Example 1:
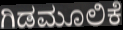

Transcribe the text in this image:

ಗಿಡಮೂಲಿಕೆ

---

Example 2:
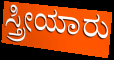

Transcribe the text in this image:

ಸ್ತ್ರೀಯಾರು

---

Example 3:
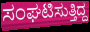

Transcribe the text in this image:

ಸಂಘಟಿಸುತ್ತಿದ್ದ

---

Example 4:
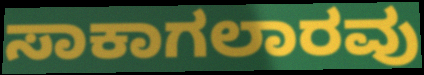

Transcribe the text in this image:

ಸಾಕಾಗಲಾರವು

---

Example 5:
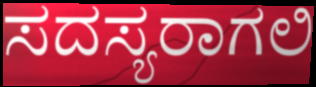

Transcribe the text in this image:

ಸದಸ್ಯರಾಗಲಿ